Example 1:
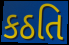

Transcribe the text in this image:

કઠતિ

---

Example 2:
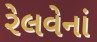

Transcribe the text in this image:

રેલવેનાં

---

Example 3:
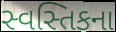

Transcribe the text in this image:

સ્વસ્તિકના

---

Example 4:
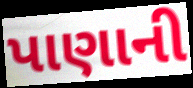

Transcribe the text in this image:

પાણાની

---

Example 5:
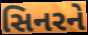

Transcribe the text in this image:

સિનરને